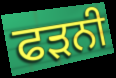
ਫੜਨੀ